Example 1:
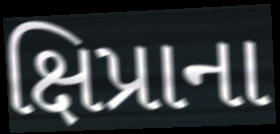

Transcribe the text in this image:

ક્ષિપ્રાના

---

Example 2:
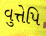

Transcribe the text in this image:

વુત્તેપિ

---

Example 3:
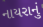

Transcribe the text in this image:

નાયરાનું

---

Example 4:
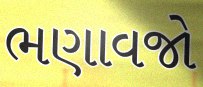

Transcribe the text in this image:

ભણાવજો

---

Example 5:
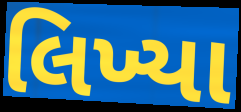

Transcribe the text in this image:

લિખ્યા